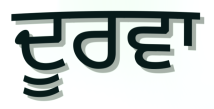
ਦੂਰਵਾ